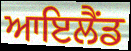
ਆਇਲੈੰਡ